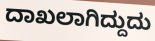
ದಾಖಲಾಗಿದ್ದುದು